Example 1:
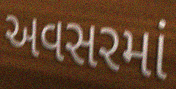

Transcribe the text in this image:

અવસરમાં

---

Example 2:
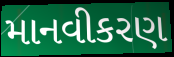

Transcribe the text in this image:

માનવીકરણ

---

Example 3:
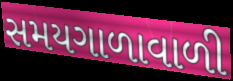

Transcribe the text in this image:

સમયગાળાવાળી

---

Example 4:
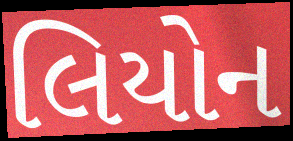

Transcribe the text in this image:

લિયોન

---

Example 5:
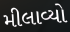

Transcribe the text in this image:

મીલાવ્યો